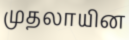
முதலாயின